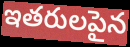
ఇతరులపైన